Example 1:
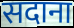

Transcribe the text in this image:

सदाना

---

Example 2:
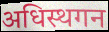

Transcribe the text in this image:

अधिस्थगन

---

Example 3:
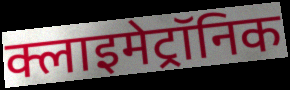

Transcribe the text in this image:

क्लाइमेट्रॉनिक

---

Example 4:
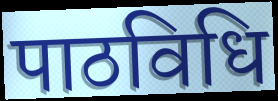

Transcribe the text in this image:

पाठविधि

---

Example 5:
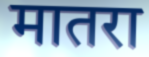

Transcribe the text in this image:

मातरा